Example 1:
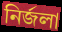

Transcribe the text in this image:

নির্জলা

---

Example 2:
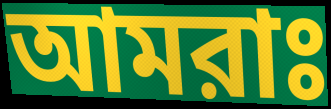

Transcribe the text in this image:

আমরাঃ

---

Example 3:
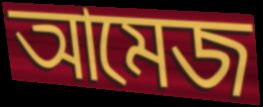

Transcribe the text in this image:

আমেজ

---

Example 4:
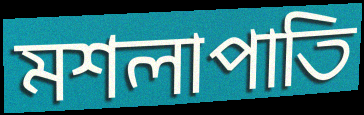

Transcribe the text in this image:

মশলাপাতি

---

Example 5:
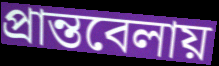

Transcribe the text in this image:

প্রান্তবেলায়